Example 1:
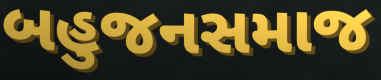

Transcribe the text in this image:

બહુજનસમાજ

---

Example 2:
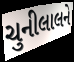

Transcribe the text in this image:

ચુનીલાલને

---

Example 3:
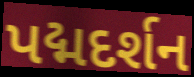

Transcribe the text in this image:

પદ્મદર્શન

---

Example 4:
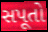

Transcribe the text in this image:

સપૂતો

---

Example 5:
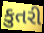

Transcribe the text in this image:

કુતરી